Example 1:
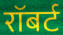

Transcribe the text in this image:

रॉबर्ट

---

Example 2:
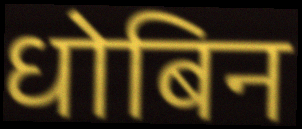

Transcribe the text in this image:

धोबिन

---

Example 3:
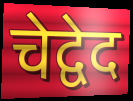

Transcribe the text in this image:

चेद्वेद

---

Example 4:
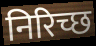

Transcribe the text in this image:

निरिच्छ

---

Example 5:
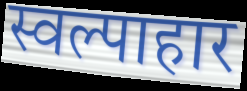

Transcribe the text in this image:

स्वल्पाहार